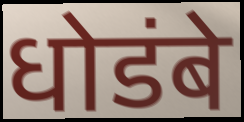
धोडंबे